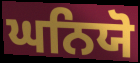
ਘਨਿਯੋ